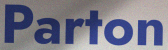
Parton